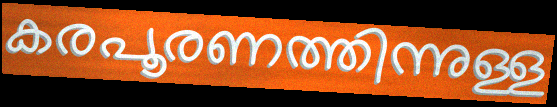
കരപൂരണത്തിന്നുള്ള